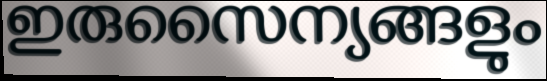
ഇരുസൈന്യങ്ങളും